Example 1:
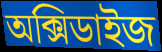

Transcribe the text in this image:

অক্সিডাইজ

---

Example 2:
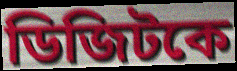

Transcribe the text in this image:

ডিজিটকে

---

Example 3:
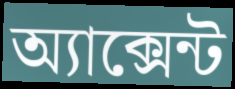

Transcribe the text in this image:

অ্যাক্সেন্ট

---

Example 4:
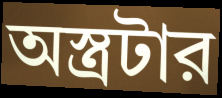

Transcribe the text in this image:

অস্ত্রটার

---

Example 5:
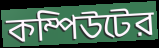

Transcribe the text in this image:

কম্পিউটের